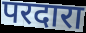
परदारा